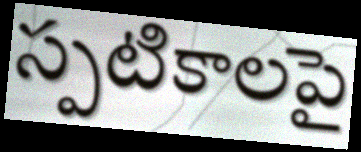
స్పటికాలపై